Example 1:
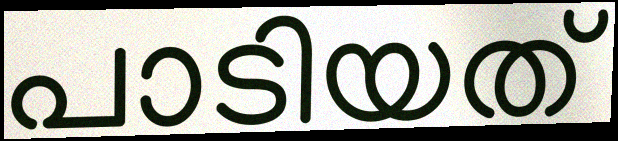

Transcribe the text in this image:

പാടിയത്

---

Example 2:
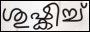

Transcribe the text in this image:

ശുഷ്കിച്ച്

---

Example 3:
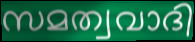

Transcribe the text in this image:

സമത്വവാദി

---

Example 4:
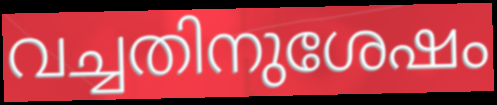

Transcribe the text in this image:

വച്ചതിനുശേഷം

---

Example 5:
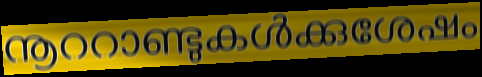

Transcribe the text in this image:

നൂററാണ്ടുകൾക്കുശേഷം